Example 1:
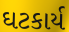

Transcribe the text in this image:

ઘટકાર્ય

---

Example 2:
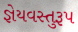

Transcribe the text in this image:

જ્ઞેયવસ્તુરૂપ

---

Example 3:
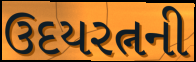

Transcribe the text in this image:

ઉદયરત્નની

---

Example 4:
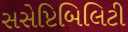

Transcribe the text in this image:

સસેપ્ટિબિલિટી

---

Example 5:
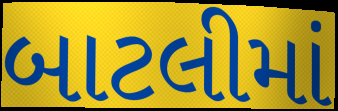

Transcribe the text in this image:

બાટલીમાં